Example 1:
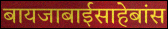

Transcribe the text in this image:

बायजाबाईसाहेबांस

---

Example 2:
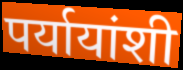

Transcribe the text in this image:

पर्यायांशी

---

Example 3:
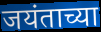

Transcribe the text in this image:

जयंताच्या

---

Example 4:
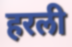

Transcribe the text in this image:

हरली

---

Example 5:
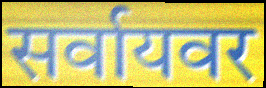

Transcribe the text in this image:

सर्वायवर